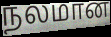
நலமான